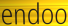
endoo